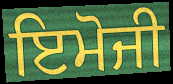
ਇਮੋਜੀ